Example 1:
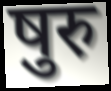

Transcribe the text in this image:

षुरु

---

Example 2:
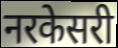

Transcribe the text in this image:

नरकेसरी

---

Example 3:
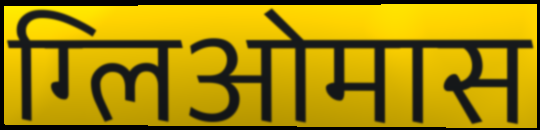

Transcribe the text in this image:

ग्लिओमास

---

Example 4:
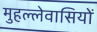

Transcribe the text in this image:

मुहल्लेवासियों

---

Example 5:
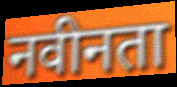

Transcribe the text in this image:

नवीनता